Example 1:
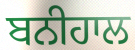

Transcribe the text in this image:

ਬਨੀਹਾਲ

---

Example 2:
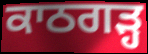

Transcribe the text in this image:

ਕਾਠਗਡ਼੍ਹ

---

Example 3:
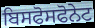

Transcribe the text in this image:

ਬਿਸਫੋਸਫੋਨੇਟ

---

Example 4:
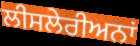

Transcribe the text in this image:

ਲੀਸਲੇਰੀਅਨਾਂ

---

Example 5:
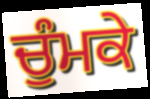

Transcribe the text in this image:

ਚੁੰਮਕੇ